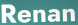
Renan